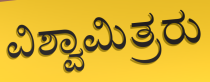
ವಿಶ್ವಾಮಿತ್ರರು